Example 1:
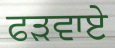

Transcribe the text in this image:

ਫੜਵਾਏ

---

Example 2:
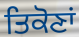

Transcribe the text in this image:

ਤਿਕੋਣਾਂ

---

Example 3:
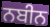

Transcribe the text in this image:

ਨਬੀਨ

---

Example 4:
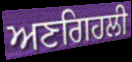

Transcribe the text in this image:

ਅਣਗਿਹਲੀ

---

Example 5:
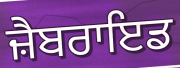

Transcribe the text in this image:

ਜ਼ੈਬਰਾਇਡ